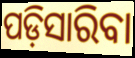
ପଡ଼ିସାରିବା